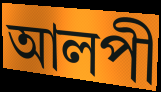
আলপী